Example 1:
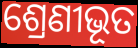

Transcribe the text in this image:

ଶ୍ରେଣୀଭୂତ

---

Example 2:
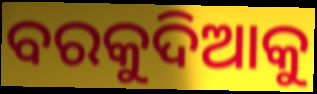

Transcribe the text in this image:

ବରକୁଦିଆକୁ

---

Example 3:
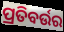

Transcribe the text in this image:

ପ୍ରତିବର୍ଉର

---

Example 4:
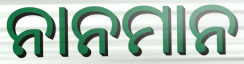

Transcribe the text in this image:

ନାନମାନ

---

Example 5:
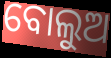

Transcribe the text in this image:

ବୋଲୁଅ